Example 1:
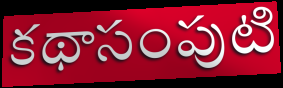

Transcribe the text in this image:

కథాసంపుటి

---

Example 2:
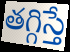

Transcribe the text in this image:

తగ్గిస్తే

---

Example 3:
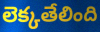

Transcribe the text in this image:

లెక్కతేలింది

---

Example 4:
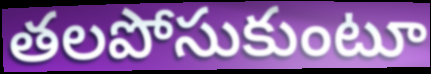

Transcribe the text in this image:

తలపోసుకుంటూ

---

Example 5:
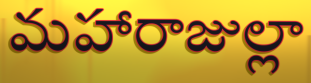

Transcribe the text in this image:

మహారాజుల్లా